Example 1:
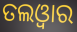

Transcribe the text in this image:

ତଲଓ୍ୱାର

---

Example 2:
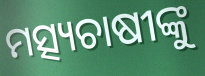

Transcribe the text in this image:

ମତ୍ସ୍ୟଚାଷୀଙ୍କୁ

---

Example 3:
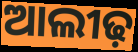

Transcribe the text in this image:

ଆଲୀଢ଼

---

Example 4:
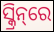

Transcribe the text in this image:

ସ୍କ୍ରିନ୍‌ରେ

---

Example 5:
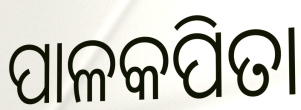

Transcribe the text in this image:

ପାଳକପିତା